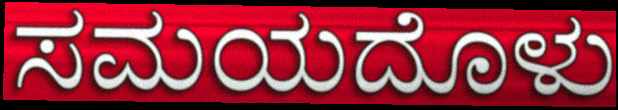
ಸಮಯದೊಳು